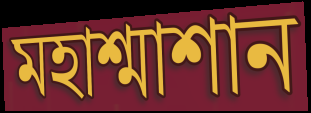
মহাশ্মাশান